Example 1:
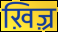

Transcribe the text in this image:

ख़िज़्र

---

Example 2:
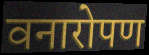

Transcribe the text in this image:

वनारोपण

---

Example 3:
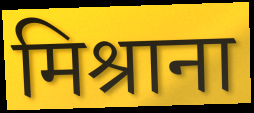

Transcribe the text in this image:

मिश्राना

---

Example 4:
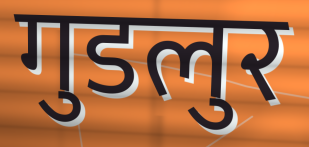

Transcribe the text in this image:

गुडलुर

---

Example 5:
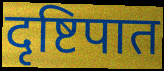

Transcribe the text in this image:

दृष्टिपात